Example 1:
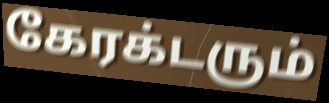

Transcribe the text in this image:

கேரக்டரும்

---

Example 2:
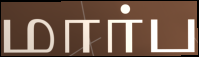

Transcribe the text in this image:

மார்ப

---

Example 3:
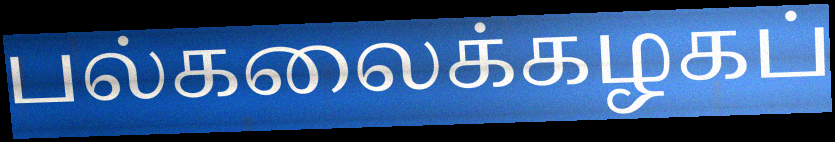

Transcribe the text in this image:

பல்கலைக்கழகப்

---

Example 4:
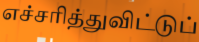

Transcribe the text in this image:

எச்சரித்துவிட்டுப்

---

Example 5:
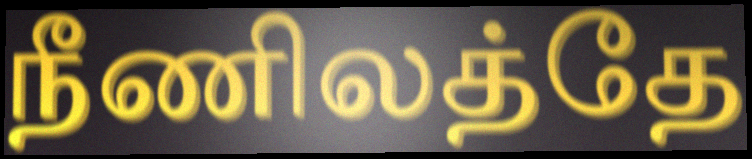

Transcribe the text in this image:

நீணிலத்தே